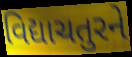
વિદ્યાચતુરને